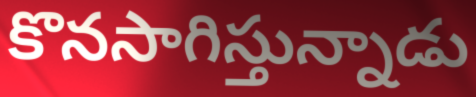
కొనసాగిస్తున్నాడు